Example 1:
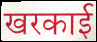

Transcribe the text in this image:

खरकाई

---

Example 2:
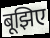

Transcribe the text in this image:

बूझिए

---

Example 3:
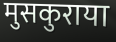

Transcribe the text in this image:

मुसकुराया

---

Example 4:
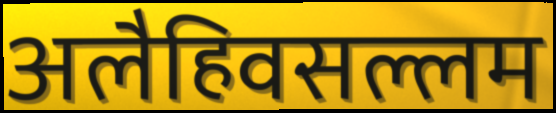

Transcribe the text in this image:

अलैहिवसल्लम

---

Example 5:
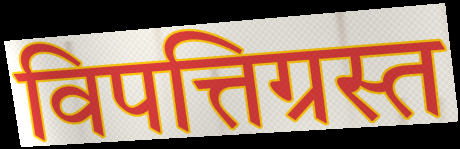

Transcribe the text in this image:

विपत्तिग्रस्त